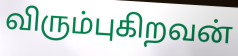
விரும்புகிறவன்